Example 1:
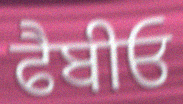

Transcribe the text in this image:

ਫੈਬੀਓ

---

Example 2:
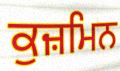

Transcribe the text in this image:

ਕੁਜ਼ਮਿਨ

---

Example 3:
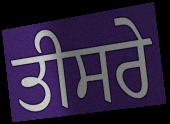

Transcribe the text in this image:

ਤੀਸਰੇ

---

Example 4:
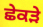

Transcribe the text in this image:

ਛੇਕੜੇ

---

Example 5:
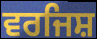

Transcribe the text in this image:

ਵਰਜਿਸ਼